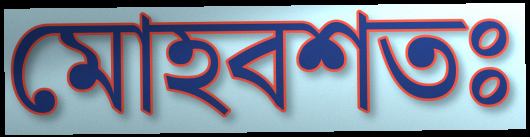
মোহবশতঃ